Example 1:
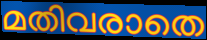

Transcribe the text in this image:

മതിവരാതെ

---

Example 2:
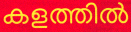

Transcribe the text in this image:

കളത്തിൽ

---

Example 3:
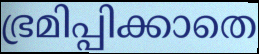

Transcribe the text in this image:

ഭ്രമിപ്പിക്കാതെ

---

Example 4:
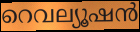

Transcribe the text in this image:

റെവല്യൂഷൻ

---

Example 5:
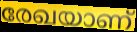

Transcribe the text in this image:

രേഖയാണ്